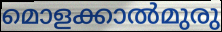
മൊളക്കാൽമുരു